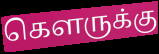
கௌருக்கு